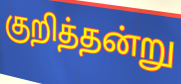
குறித்தன்று